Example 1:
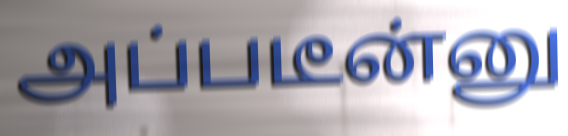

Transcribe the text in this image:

அப்படீன்னு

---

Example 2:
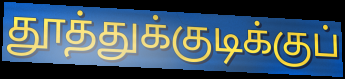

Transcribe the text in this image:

தூத்துக்குடிக்குப்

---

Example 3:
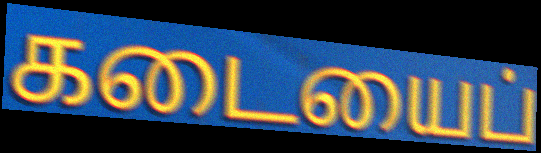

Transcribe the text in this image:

கடையைப்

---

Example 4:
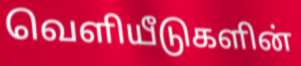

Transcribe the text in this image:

வெளியீடுகளின்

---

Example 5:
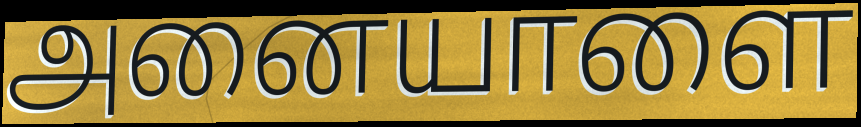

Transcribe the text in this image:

அனையாளை